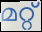
മറ്റ്